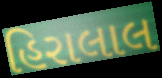
હિરાલાલ